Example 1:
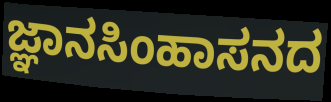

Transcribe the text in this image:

ಜ್ಞಾನಸಿಂಹಾಸನದ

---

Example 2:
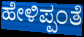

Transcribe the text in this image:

ಹೇಳಿಪ್ಪಂತೆ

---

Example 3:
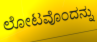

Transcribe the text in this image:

ಲೋಟವೊಂದನ್ನು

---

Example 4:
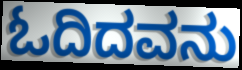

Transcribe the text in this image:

ಓದಿದವನು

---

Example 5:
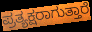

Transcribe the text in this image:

ಪ್ರತ್ಯಕ್ಷರಾಗುತ್ತಾರೆ